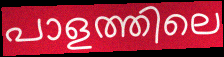
പാളത്തിലെ